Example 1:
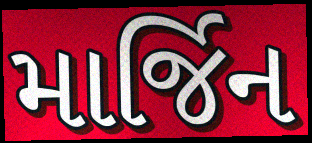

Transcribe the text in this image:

માર્જિન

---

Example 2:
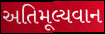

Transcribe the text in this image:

અતિમૂલ્યવાન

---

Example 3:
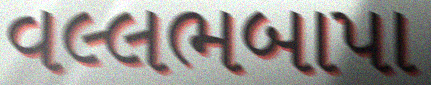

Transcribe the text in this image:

વલ્લભબાપા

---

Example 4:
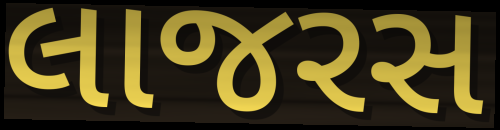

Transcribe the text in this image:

લાજરસ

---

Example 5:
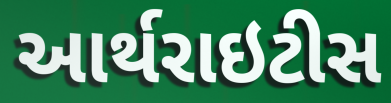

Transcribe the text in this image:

આર્થરાઇટીસ